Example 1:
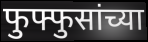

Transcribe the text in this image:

फुफ्फुसांच्या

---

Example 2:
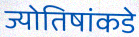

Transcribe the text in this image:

ज्योतिषांकडे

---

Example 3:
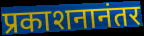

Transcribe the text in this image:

प्रकाशनानंतर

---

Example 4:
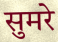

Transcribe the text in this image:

सुमरे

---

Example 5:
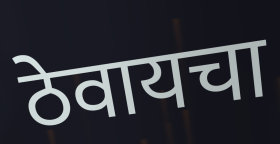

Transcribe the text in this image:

ठेवायचा